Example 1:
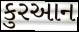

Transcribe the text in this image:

કુરઆન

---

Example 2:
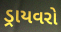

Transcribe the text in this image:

ડ્રાયવરો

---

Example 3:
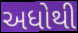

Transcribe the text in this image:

અધોથી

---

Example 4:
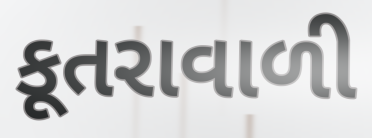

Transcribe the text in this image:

કૂતરાવાળી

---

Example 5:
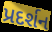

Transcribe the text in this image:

પ્રદર્શન